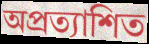
অপ্ৰত্যাশিত